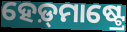
ହେଡ଼୍‌ମାଷ୍ଟ୍ରେ